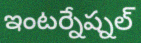
ఇంటర్నేష్నల్